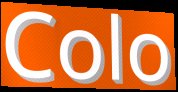
Colo